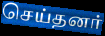
செய்தனர்